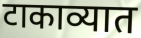
टाकाव्यात